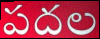
పదల